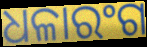
ଧଳାରଂଗ